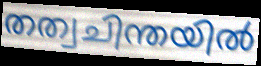
തത്വചിന്തയിൽ